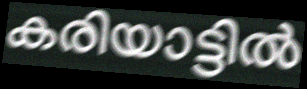
കരിയാട്ടിൽ